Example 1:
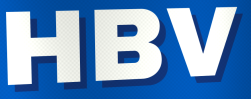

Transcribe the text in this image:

HBV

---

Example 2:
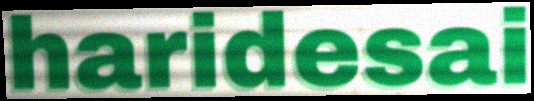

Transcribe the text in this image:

haridesai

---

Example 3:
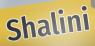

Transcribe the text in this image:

Shalini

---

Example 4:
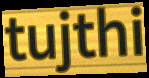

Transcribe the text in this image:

tujthi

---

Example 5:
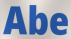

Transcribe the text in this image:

Abe